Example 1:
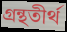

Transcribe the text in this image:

গ্রন্থতীর্থ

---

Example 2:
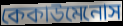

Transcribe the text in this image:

কেকাউমেনোস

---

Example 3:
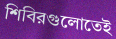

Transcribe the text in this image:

শিবিরগুলোতেই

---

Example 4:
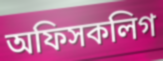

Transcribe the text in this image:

অফিসকলিগ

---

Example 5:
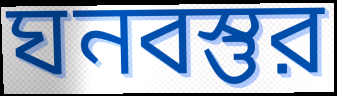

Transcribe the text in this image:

ঘনবস্তুর